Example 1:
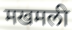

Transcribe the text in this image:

मखमली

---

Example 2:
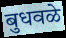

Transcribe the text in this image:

बुधवळे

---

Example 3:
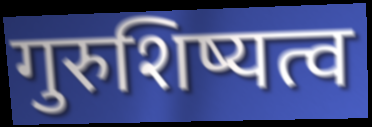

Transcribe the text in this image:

गुरुशिष्यत्व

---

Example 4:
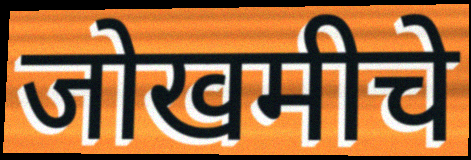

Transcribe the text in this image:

जोखमीचे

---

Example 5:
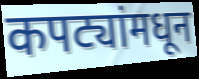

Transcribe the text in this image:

कपट्यांमधून